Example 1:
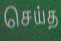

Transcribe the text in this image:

செய்த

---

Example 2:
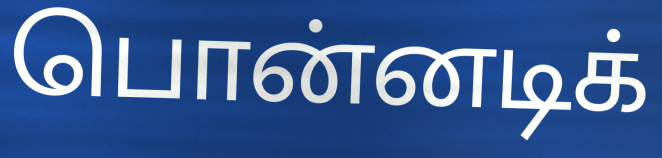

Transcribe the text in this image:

பொன்னடிக்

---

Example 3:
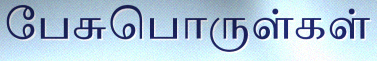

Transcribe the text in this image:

பேசுபொருள்கள்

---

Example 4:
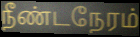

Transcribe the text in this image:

நீண்டநேரம்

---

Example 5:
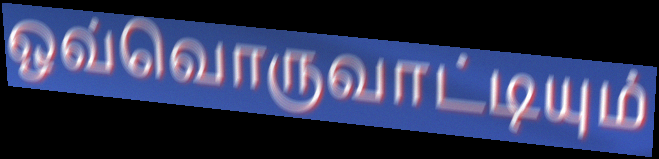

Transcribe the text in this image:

ஒவ்வொருவாட்டியும்